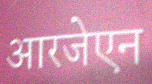
आरजेएन